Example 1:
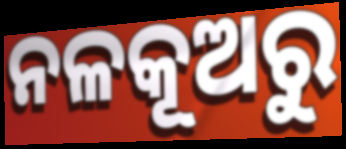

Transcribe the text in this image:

ନଳକୂଅରୁ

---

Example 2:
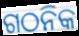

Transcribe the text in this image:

ଗଠନିକ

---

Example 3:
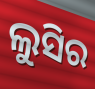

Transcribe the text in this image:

ଲୁସିର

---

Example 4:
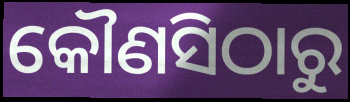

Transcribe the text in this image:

କୌଣସିଠାରୁ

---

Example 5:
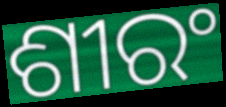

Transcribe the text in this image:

ଶୀରଂ